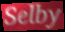
Selby